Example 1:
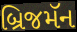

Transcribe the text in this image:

બ્રિજમૅન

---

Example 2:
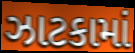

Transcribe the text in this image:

ઝાટકામાં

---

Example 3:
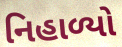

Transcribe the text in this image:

નિહાળ્યો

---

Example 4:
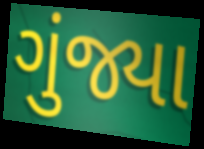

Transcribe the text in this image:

ગુંજ્યા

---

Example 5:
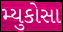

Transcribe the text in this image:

મ્યુકોસા